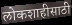
लोकशाहीसाठी